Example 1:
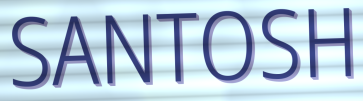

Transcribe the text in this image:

SANTOSH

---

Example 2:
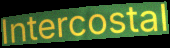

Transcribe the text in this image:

Intercostal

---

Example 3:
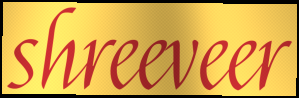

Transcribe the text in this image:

shreeveer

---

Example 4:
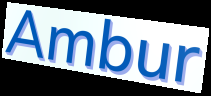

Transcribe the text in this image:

Ambur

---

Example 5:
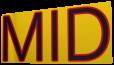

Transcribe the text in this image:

MID